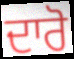
ਦਾਰੋ